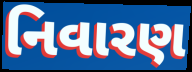
નિવારણ